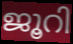
ജൂറി